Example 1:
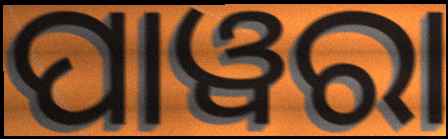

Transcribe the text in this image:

ପାୱରା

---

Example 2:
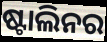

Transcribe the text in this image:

ଷ୍ଟାଲିନର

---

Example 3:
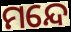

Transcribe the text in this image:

ମନ୍ଦେ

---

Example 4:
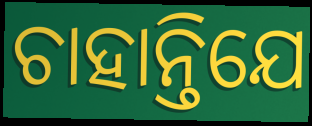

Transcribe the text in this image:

ଚାହାନ୍ତିଯେ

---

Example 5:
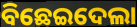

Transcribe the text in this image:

ବିଛେଇଦେଲା